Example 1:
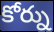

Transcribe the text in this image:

కోర్ను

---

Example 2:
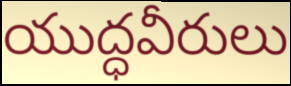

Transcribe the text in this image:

యుద్ధవీరులు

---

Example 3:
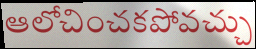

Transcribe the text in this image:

ఆలోచించకపోవచ్చు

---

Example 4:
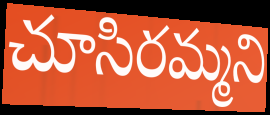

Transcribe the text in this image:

చూసిరమ్మని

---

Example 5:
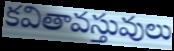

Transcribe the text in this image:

కవితావస్తువులు